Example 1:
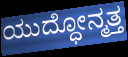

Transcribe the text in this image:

ಯುದ್ಧೋನ್ಮತ್ತ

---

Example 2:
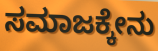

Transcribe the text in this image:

ಸಮಾಜಕ್ಕೇನು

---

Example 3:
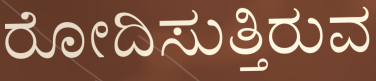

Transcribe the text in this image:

ರೋದಿಸುತ್ತಿರುವ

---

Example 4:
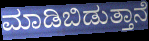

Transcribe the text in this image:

ಮಾಡಿಬಿಡುತ್ತಾನೆ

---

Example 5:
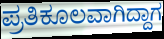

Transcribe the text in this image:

ಪ್ರತಿಕೂಲವಾಗಿದ್ದಾಗ